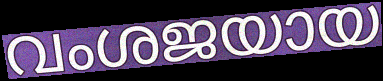
വംശജയായ